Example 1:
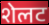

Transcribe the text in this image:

शेलट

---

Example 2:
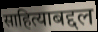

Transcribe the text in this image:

साहित्याबद्दल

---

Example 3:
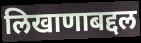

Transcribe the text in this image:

लिखाणाबद्दल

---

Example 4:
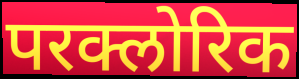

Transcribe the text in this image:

परक्लोरिक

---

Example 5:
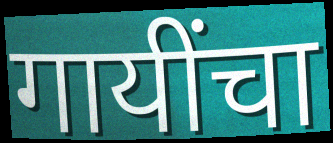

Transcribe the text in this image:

गायींचा